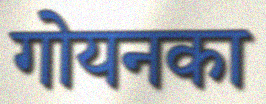
गोयनका